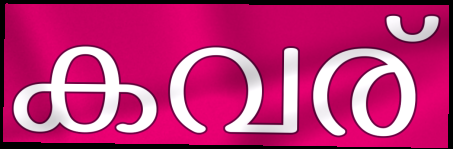
കവര്